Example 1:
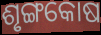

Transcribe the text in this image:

ଶୃଙ୍ଗକୋଷ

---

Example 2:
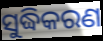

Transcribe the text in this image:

ସୁଦ୍ଧିକରଣ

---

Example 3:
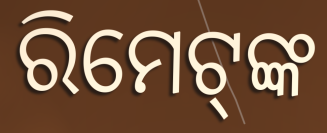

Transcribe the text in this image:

ରିମେଟ୍‍ଙ୍କ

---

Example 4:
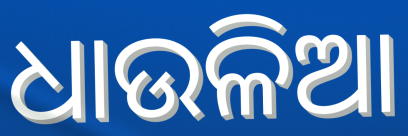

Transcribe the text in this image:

ଧାଉଳିଆ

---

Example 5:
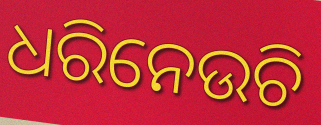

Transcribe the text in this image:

ଧରିନେଉଚି